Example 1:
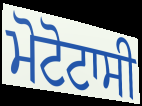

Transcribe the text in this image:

ਮੋਟੋਟਾਸੀ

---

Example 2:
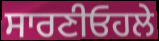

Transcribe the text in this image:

ਸਾਰਣੀਓਹਲੇ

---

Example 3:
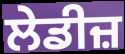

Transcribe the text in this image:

ਲੇਡੀਜ਼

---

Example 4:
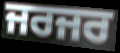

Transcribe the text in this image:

ਜਰਜਰ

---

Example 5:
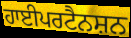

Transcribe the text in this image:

ਹਾਈਪਰਟੈਨਸ਼ਨ